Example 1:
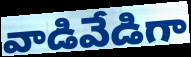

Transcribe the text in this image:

వాడివేడిగా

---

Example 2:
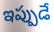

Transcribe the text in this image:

ఇప్పుడే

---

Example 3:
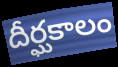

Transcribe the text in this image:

దీర్ఘకాలం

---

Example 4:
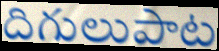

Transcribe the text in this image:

దిగులుపాట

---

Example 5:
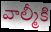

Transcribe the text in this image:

వాల్మీకి